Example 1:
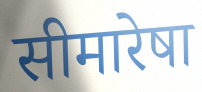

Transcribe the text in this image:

सीमारेषा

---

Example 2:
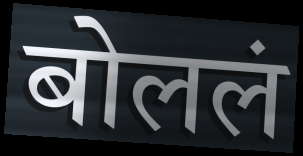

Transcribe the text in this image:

बोललं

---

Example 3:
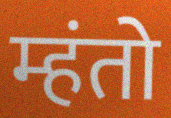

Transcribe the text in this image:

म्हंतो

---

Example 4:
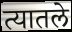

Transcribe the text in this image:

त्यातले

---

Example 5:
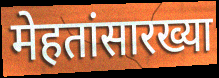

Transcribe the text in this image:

मेहतांसारख्या